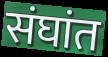
संघांत